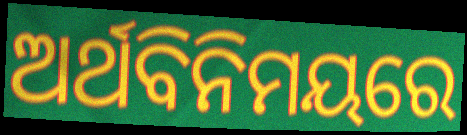
ଅର୍ଥବିନିମୟରେ